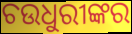
ଚଉଧୁରୀଙ୍କର